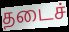
தடைச்